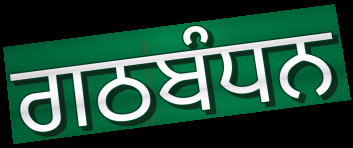
ਗਠਬੰਧਨ